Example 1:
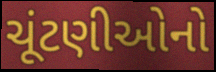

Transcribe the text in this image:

ચૂંટણીઓનો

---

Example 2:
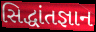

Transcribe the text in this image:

સિદ્ધાંતજ્ઞાન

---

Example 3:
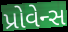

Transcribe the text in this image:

પ્રોવેન્સ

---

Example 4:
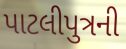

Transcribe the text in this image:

પાટલીપુત્રની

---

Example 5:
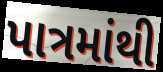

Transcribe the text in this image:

પાત્રમાંથી